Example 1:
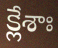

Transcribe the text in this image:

క్లేశాః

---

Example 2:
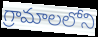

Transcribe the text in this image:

గ్రామాలలోని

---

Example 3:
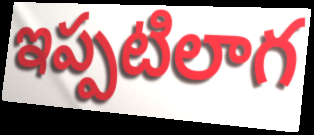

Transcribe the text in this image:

ఇప్పటిలాగ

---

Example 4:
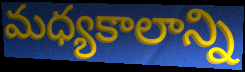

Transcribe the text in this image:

మధ్యకాలాన్ని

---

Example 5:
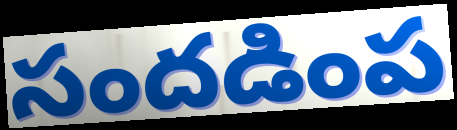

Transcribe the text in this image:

సందడింప